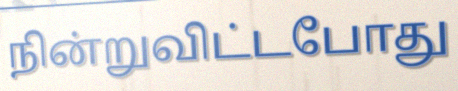
நின்றுவிட்டபோது